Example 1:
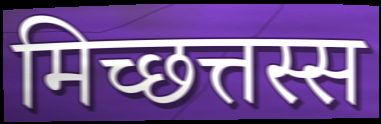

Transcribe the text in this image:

मिच्छत्तस्स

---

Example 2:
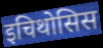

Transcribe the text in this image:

इचिथोसिस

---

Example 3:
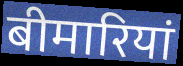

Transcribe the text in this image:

बीमारियां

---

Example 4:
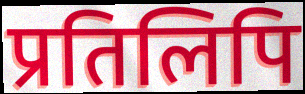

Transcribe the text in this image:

प्रतिलिपि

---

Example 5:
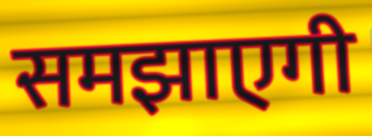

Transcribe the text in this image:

समझाएगी